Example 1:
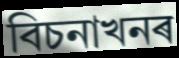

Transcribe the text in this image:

বিচনাখনৰ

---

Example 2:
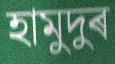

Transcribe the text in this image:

হামুদুৰ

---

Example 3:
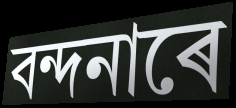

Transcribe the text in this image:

বন্দনাৰে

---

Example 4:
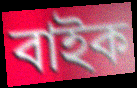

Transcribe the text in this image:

বাইক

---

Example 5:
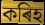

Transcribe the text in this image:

কৰিহ